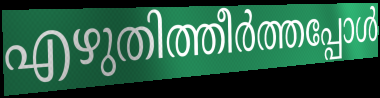
എഴുതിത്തീർത്തപ്പോൾ